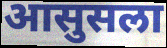
आसुसला